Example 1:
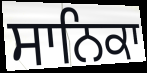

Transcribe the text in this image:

ਸਾਨਿਕਾ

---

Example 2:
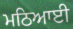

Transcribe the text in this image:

ਮਠਿਆਈ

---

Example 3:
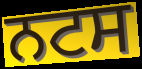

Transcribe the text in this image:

ਨਟਸ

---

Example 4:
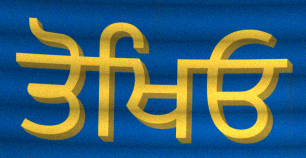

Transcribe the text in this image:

ਤੋਖਿਓ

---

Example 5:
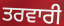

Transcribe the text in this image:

ਤਰਵਾਰੀ